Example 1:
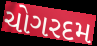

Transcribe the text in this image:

ચોગરદમ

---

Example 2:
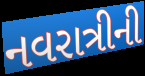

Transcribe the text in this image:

નવરાત્રીની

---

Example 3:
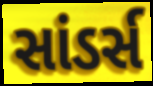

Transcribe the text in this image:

સાંડર્સ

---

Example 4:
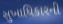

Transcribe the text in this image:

સુખાધિકારની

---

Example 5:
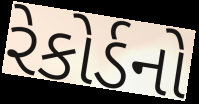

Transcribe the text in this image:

રેકોર્ડનો